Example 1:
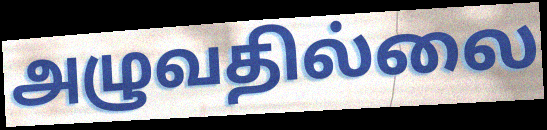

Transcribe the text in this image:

அழுவதில்லை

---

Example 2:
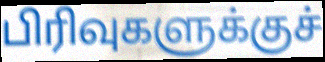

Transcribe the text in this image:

பிரிவுகளுக்குச்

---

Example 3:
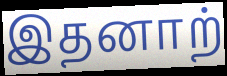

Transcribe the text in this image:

இதனாற்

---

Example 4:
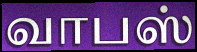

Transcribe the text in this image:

வாபஸ்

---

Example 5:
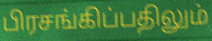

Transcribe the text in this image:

பிரசங்கிப்பதிலும்